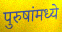
पुरुषांमध्ये